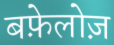
बफ़ेलोज़